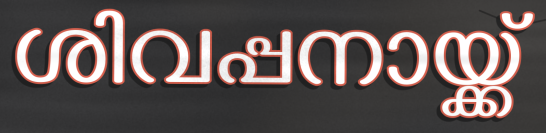
ശിവപ്പനായ്ക്ക്